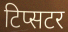
टिप्सटर